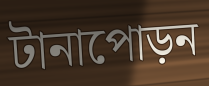
টানাপোড়ন